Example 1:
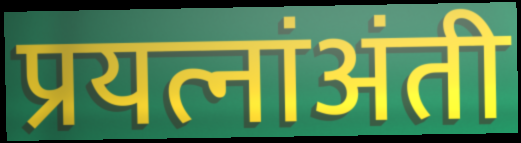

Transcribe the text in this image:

प्रयत्नांअंती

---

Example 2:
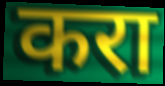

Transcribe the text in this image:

करा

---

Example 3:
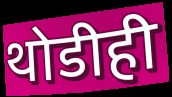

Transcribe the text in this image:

थोडीही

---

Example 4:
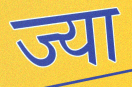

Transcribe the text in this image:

ज्या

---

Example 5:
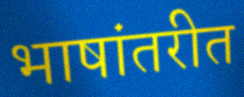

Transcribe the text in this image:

भाषांतरीत